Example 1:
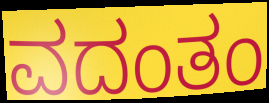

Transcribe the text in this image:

ವದಂತಂ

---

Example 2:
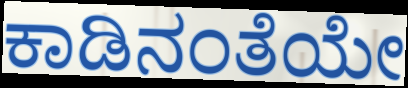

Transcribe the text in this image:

ಕಾಡಿನಂತೆಯೇ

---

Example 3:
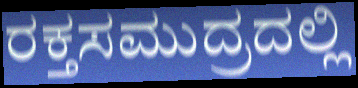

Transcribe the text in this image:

ರಕ್ತಸಮುದ್ರದಲ್ಲಿ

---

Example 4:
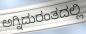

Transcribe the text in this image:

ಅಗ್ನಿದುರಂತದಲ್ಲಿ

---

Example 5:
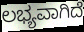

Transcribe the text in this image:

ಲಭ್ಯವಾಗಿದೆ